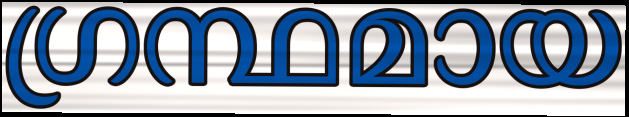
ഗ്രന്ഥമായ